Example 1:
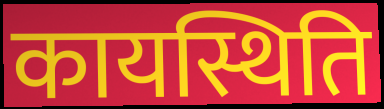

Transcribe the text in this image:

कायस्थिति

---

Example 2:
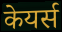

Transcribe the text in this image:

केयर्स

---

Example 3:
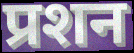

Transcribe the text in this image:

प्रशन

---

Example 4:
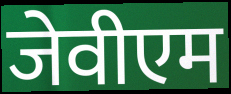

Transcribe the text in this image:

जेवीएम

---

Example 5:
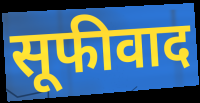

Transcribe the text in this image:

सूफीवाद